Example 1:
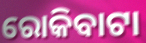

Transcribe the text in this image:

ରୋକିବାଟା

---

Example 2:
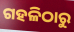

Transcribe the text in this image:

ଗହଳିଠାରୁ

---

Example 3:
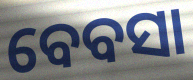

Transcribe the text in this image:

ବେବସା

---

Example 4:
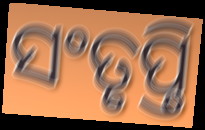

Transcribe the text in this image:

ସଂତୃପ୍ତି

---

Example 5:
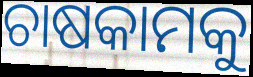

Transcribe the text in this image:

ଚାଷକାମକୁ